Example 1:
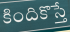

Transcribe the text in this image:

కిందికొస్తే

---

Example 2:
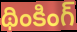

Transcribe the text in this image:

థింకింగ్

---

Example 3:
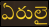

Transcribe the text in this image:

ఏరులై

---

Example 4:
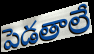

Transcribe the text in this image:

పెడతాలే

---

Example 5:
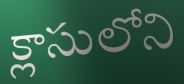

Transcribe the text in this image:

క్లాసులోని